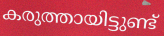
കരുത്തായിട്ടുണ്ട്